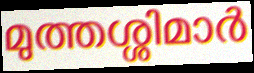
മുത്തശ്ശിമാർ